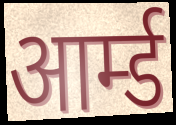
आर्म्ड